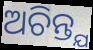
ଅଚିନ୍ତ୍ଯ